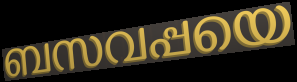
ബസവപ്പയെ